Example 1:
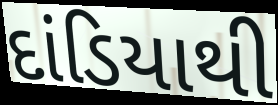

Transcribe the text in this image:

દાંડિયાથી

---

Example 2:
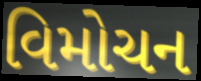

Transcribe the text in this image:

વિમોચન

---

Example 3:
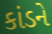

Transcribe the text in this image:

કાંડને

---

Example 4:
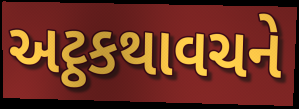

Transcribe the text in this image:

અટ્ઠકથાવચને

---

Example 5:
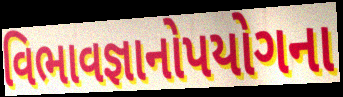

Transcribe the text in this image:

વિભાવજ્ઞાનોપયોગના